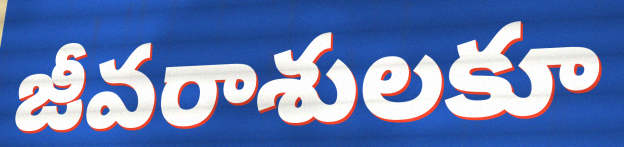
జీవరాశులకూ